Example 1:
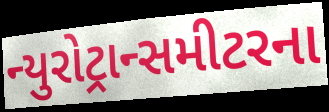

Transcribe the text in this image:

ન્યુરોટ્રાન્સમીટરના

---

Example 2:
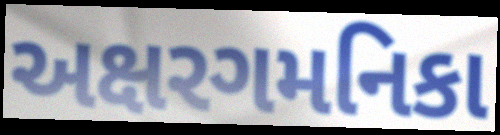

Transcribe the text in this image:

અક્ષરગમનિકા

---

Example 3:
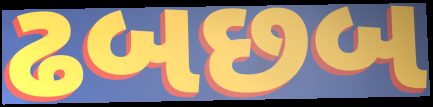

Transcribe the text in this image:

ઢબછબ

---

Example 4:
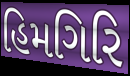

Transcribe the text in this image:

હિમગિરિ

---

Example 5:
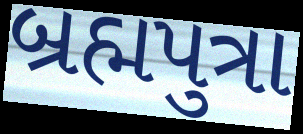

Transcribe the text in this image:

બ્રહ્મપુત્રા